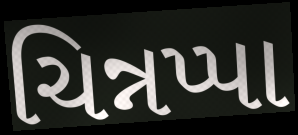
ચિન્નપ્પા